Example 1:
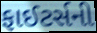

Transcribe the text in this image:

ફાઈટર્સની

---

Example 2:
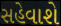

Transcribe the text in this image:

સહેવાશે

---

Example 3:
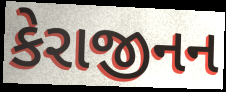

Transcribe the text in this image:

કેરાજીનન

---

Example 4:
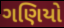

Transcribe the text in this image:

ગણિયો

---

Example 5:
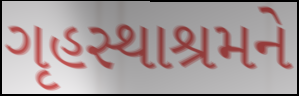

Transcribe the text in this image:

ગૃહસ્થાશ્રમને